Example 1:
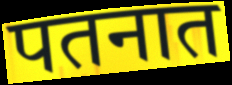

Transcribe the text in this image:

पतनात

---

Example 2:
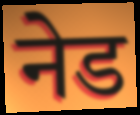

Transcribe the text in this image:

नेड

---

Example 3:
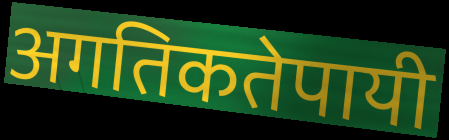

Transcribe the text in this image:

अगतिकतेपायी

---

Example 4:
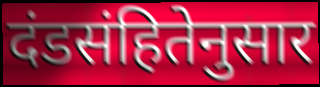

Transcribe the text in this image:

दंडसंहितेनुसार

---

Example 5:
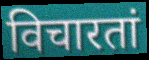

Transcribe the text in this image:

विचारतां